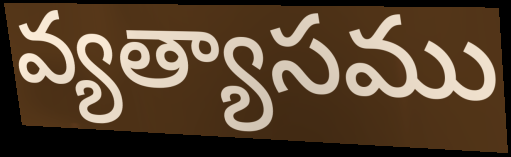
వ్యత్యాసము